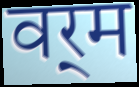
वर्म